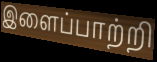
இளைப்பாற்றி